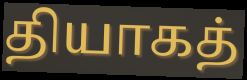
தியாகத்